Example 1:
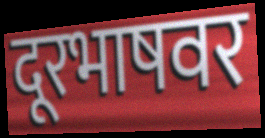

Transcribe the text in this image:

दूरभाषवर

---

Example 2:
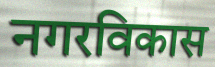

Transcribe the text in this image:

नगरविकास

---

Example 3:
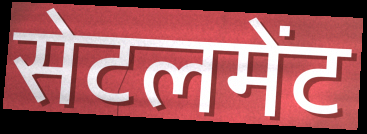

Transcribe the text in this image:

सेटलमेंट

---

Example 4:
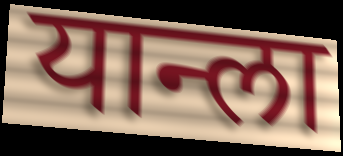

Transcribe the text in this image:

यान्ला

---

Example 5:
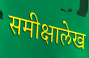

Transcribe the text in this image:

समीक्षालेख